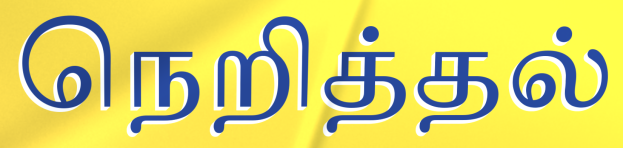
நெறித்தல்